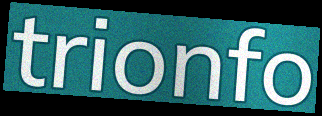
trionfo